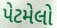
પેટમેલો